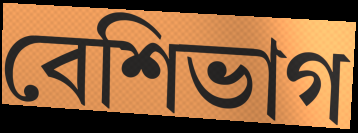
বেশিভাগ